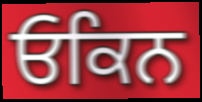
ਓਕਿਨ